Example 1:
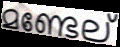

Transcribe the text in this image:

മണ്ടേല്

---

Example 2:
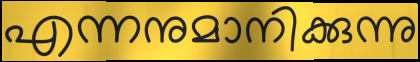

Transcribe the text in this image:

എന്നനുമാനിക്കുന്നു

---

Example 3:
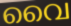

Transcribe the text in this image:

വൈ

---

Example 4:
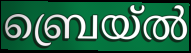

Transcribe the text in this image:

ബ്രെയ്ൽ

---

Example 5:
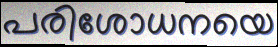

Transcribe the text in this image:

പരിശോധനയെ